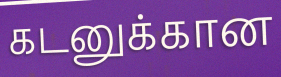
கடனுக்கான